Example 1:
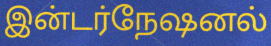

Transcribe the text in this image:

இன்டர்நேஷனல்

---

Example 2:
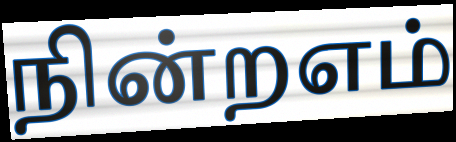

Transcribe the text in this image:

நின்றஎம்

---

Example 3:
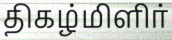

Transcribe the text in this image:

திகழ்மிளிர்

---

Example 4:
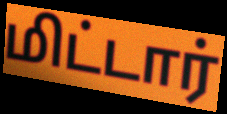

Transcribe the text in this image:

மிட்டார்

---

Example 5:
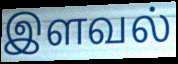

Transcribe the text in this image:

இளவல்